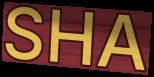
SHA